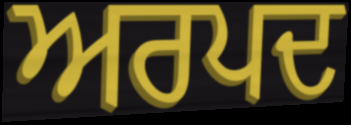
ਅਰਪਦ